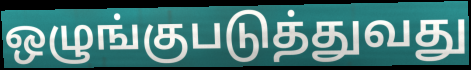
ஒழுங்குபடுத்துவது